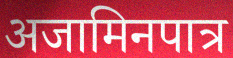
अजामिनपात्र